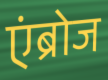
एंब्रोज